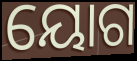
ୟୋଗ